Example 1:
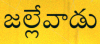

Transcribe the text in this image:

జల్లేవాడు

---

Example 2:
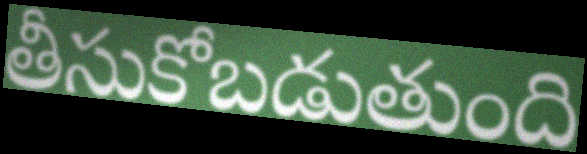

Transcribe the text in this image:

తీసుకోబడుతుంది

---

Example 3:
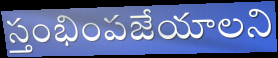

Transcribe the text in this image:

స్తంభింపజేయాలని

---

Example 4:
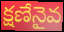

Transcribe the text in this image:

క్షణేనైవ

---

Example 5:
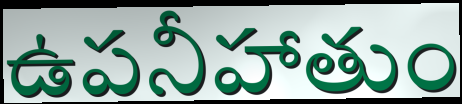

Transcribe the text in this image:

ఉపనీహాతుం